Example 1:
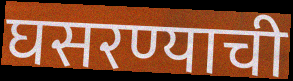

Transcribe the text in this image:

घसरण्याची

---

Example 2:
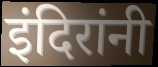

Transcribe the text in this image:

इंदिरांनी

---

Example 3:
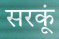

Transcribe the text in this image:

सरकूं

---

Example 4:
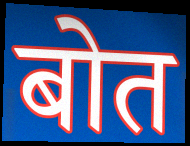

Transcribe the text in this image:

बोत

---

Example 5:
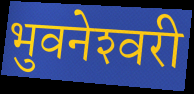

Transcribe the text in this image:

भुवनेश्वरी